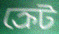
ক্রেট